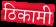
ठिकामी